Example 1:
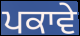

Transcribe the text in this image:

ਪਕਾਵੇ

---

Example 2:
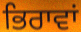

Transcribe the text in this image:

ਭਿਰਾਵਾਂ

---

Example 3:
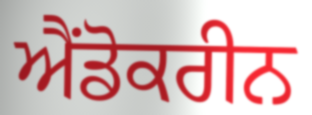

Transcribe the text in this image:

ਐਂਡੋਕਰੀਨ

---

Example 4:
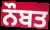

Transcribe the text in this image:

ਨੌਬਤ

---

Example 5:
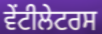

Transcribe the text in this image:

ਵੇਂਟੀਲੇਟਰਸ